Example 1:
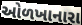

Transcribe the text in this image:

ઓળખાનારા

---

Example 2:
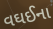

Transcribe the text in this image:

વઘઈના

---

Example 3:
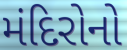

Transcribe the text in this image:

મંદિરોનો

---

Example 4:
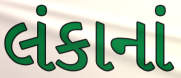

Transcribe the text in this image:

લંકાનાં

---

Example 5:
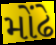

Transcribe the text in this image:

મોંઢે